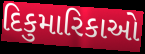
દિકુમારિકાઓ